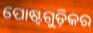
ପୋଷ୍ଟଗୁଡ଼ିକର